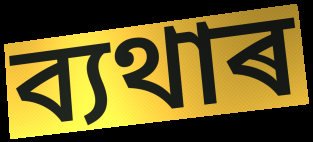
ব্যথাৰ